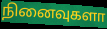
நினைவுகளா